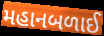
મહાનબળાઈ